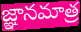
జ్ఞానమాత్ర